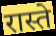
रास्ते